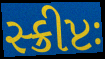
સ્ક્રીપ્ટઃ